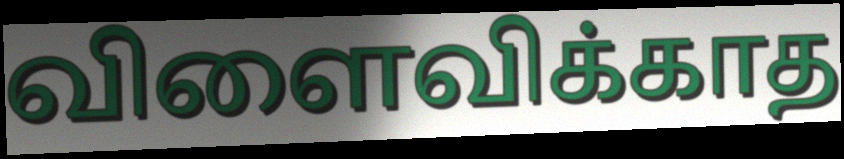
விளைவிக்காத